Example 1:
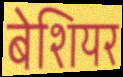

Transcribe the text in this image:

बेशियर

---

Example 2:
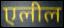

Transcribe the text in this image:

एलील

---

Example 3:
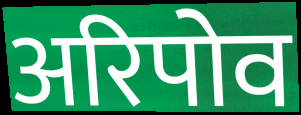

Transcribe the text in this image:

अरिपोव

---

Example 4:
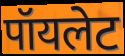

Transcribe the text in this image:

पॉयलेट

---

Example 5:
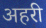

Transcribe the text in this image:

अहरी